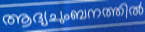
ആദ്യചുംബനത്തിൽ